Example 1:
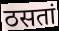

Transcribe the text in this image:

ठसतां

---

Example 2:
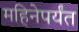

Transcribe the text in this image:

महिनेपर्यंत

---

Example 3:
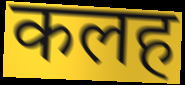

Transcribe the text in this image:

कलह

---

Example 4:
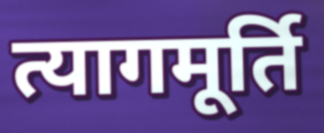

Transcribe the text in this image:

त्यागमूर्ति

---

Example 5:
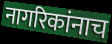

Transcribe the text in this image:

नागरिकांनाच